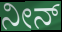
ನೀನ್